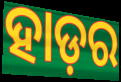
ହାଡ଼ର